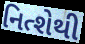
નિત્શેથી